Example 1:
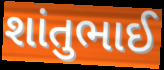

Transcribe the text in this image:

શાંતુભાઈ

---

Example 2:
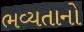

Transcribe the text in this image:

ભવ્યતાનો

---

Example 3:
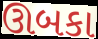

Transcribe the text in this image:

ઊબકા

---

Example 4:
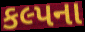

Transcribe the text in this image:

કલ્પના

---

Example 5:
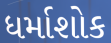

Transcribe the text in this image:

ધર્માશોક